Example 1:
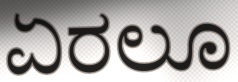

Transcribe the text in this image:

ಏರಲೂ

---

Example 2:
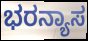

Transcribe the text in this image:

ಭರನ್ಯಾಸ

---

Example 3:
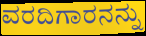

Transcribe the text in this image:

ವರದಿಗಾರನನ್ನು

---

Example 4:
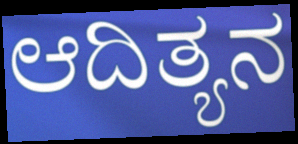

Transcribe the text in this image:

ಆದಿತ್ಯನ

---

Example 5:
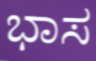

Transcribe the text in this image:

ಭಾಸ